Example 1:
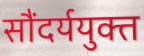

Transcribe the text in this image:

सौंदर्ययुक्त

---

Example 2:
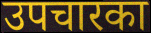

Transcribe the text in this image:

उपचारका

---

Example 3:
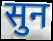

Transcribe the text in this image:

सुन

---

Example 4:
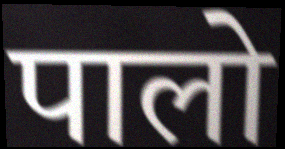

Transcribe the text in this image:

पालो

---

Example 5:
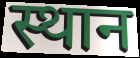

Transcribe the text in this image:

स्थान